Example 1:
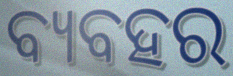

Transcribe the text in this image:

ବ୍ଯବହର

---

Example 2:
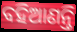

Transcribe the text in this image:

ବହିଆଣନ୍ତି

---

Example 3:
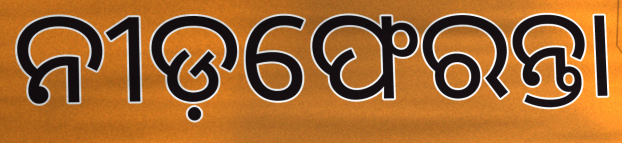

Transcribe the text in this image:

ନୀଡ଼ଫେରନ୍ତା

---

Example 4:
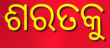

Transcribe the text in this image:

ଶରତକୁ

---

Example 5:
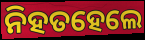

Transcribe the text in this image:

ନିହତହେଲେ